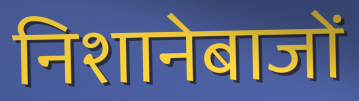
निशानेबाजों